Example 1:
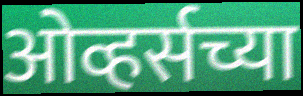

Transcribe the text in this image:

ओव्हर्सच्या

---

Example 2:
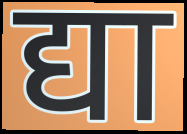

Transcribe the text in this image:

द्या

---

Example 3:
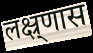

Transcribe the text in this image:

लक्ष्र्णास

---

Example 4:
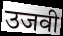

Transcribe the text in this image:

उजवी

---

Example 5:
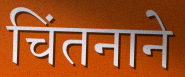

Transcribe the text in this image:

चिंतनाने